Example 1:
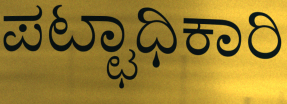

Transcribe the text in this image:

ಪಟ್ಟಾಧಿಕಾರಿ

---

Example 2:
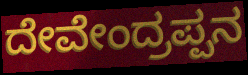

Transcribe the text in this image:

ದೇವೇಂದ್ರಪ್ಪನ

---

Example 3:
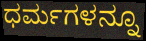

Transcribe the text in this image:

ಧರ್ಮಗಳನ್ನೂ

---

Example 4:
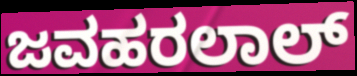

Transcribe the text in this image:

ಜವಹರಲಾಲ್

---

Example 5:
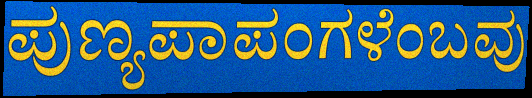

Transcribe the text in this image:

ಪುಣ್ಯಪಾಪಂಗಳೆಂಬವು